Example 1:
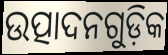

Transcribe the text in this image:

ଉତ୍ପାଦନଗୁଡ଼ିକ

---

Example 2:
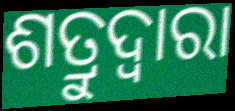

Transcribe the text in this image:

ଶତ୍ରୁଦ୍ଵାରା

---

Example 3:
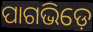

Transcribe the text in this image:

ପାଗଭିଡ଼େ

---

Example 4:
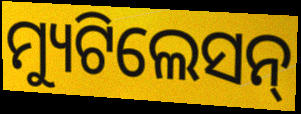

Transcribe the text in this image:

ମ୍ୟୁଟିଲେସନ୍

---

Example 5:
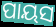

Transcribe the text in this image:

ପାୟସ